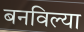
बनविल्या